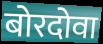
बोरदोवा